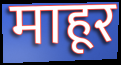
माहूर